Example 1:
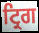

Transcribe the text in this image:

ਟ੍ਰਿਗ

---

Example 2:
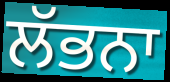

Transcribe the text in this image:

ਲੱਭਨਾ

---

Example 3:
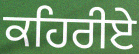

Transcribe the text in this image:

ਕਹਿਰੀਏ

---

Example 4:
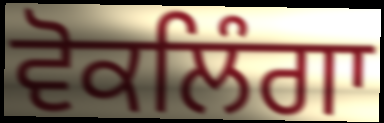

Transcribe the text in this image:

ਵੋਕਲਿੰਗਾ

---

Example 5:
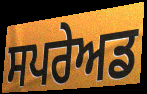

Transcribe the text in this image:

ਸਪਰੇਅਡ